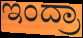
ಇಂದ್ರಾ